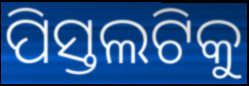
ପିସ୍ତଲଟିକୁ